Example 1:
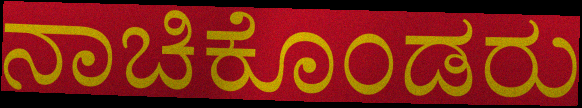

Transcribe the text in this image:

ನಾಚಿಕೊಂಡರು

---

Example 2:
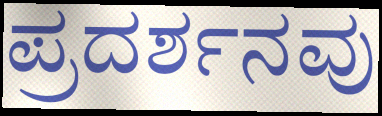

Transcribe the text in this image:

ಪ್ರದರ್ಶನವು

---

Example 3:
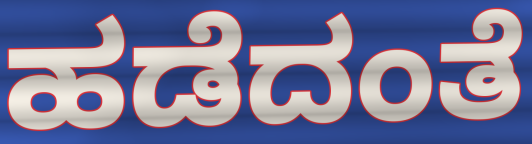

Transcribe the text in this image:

ಹಡೆದಂತೆ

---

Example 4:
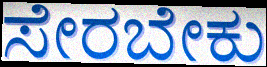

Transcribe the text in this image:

ಸೇರಬೇಕು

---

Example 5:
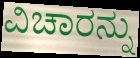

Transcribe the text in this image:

ವಿಚಾರನ್ನು